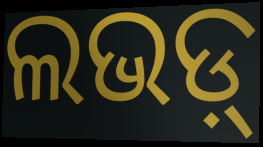
ଲଭଡ଼୍